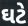
ઘટે